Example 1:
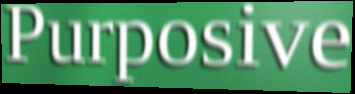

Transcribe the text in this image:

Purposive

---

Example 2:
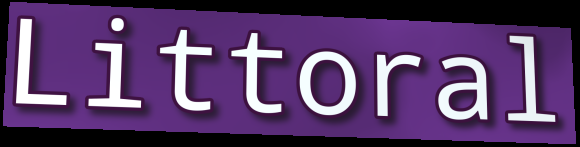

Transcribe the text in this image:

Littoral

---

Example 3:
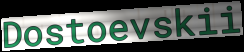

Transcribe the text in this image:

Dostoevskii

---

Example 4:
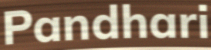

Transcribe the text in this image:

Pandhari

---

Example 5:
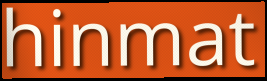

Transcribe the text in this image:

hinmat